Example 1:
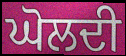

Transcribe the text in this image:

ਘੋਲਦੀ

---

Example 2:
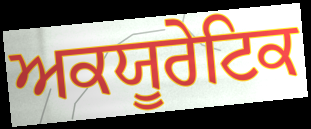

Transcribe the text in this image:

ਅਕਯੂਰੇਟਿਕ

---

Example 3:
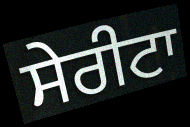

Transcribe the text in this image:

ਸੇਰੀਟਾ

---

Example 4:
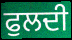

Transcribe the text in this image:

ਫੁਲਦੀ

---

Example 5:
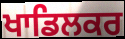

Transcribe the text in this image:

ਖਾਡਿਲਕਰ